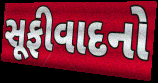
સૂફીવાદનો